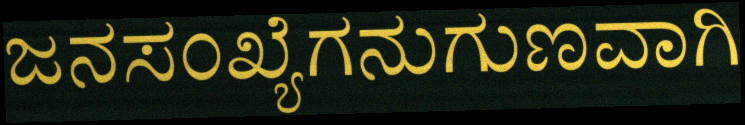
ಜನಸಂಖ್ಯೆಗನುಗುಣವಾಗಿ